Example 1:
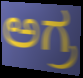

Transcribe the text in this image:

ಅಗ್ರ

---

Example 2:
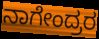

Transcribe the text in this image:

ನಾಗೇಂದ್ರರ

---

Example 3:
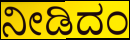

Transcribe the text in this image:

ನೀಡಿದಂ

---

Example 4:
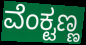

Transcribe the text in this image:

ವೆಂಕ್ಟಣ್ಣ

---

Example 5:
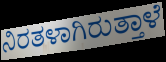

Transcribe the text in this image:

ನಿರತಳಾಗಿರುತ್ತಾಳೆ